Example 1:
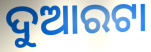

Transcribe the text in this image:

ଦୁଆରଟା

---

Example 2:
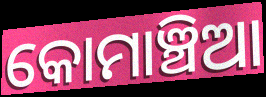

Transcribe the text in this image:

କୋମାଞ୍ଚିଆ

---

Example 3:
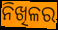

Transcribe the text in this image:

ନିଖିଳର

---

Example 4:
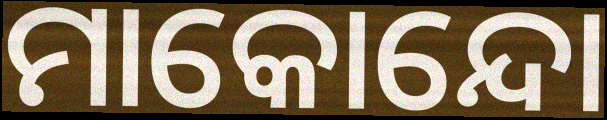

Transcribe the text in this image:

ମାକୋନ୍ଦୋ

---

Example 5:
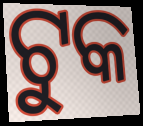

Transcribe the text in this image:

ଟୁକ